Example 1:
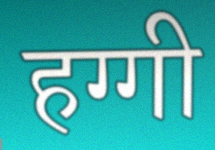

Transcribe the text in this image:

हग्गी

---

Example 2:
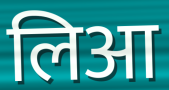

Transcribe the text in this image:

लिआ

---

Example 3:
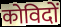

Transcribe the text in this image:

कोविदों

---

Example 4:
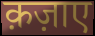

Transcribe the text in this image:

क़ज़ाए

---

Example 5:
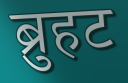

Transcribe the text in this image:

ब्रुहट